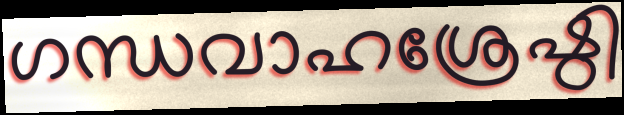
ഗന്ധവാഹശ്രേഷ്ഠി